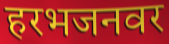
हरभजनवर